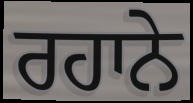
ਰਹਾਨੇ